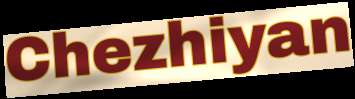
Chezhiyan